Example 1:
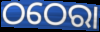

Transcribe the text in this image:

ଠଠେରା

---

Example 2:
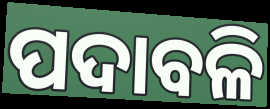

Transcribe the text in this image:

ପଦାବଳି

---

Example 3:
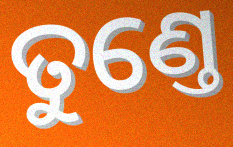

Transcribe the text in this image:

ତୁଣ୍ତେ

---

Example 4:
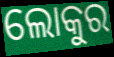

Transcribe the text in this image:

ଲୋକୁର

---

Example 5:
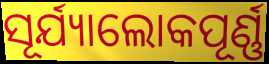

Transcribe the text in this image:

ସୂର୍ଯ୍ୟାଲୋକପୂର୍ଣ୍ଣ